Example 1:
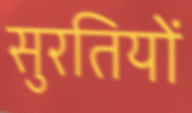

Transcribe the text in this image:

सुरतियों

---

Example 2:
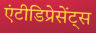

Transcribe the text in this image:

एंटीडिप्रेसेंट्स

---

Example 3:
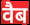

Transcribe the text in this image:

वैब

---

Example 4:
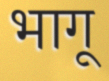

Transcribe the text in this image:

भागू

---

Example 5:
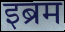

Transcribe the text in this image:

इब्रम